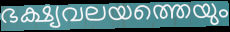
ഭക്ഷ്യവലയത്തെയും